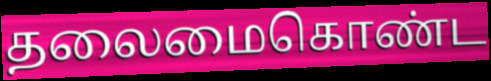
தலைமைகொண்ட